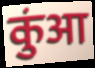
कुंआ